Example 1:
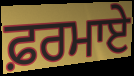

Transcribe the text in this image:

ਫ਼ਰਮਾਏ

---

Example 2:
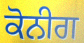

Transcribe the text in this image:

ਕੋਨੀਗ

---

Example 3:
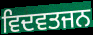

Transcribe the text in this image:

ਵਿਦਵਤਜਨ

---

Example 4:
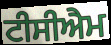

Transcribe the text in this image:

ਟੀਸੀਐਮ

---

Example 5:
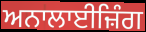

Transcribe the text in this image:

ਅਨਾਲਾਈਜ਼ਿੰਗ